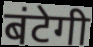
बंटेगी